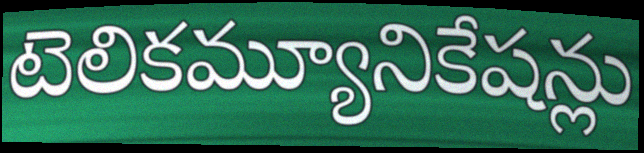
టెలికమ్యూనికేషన్లు